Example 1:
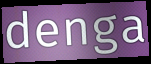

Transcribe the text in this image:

denga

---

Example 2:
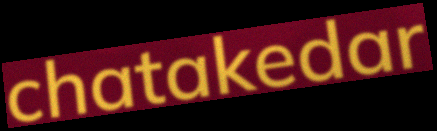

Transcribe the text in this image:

chatakedar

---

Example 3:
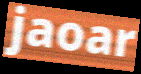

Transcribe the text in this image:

jaoar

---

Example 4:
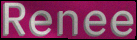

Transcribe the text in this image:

Renee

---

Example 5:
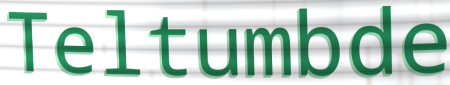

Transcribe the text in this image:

Teltumbde